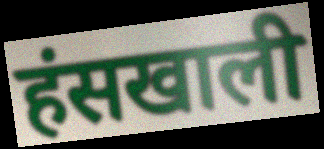
हंसखाली